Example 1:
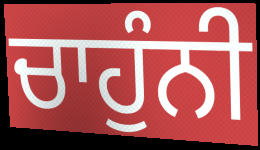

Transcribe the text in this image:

ਚਾਹੁੰਨੀ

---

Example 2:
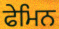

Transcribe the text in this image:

ਫੇਮਿਨ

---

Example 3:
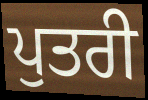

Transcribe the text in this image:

ਪੁਤਰੀ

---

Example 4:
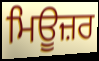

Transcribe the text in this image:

ਮਿਊਜ਼ਰ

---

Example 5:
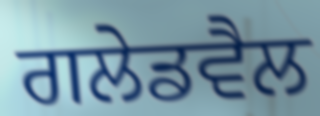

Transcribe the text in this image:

ਗਲੇਡਵੈਲ